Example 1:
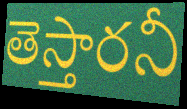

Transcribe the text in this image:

తెస్తారనీ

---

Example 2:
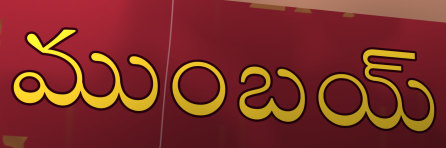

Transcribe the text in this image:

ముంబయ్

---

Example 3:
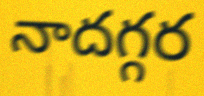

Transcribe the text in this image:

నాదగ్గర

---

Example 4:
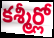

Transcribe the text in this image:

కశ్మీర్లో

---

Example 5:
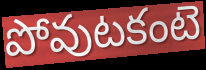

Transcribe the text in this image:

పోవుటకంటె